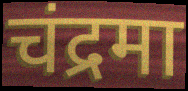
चंद्रमा